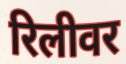
रिलीवर